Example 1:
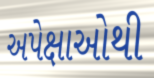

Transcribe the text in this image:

અપેક્ષાઓથી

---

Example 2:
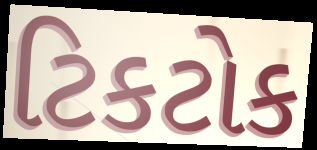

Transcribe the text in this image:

ટિકટોક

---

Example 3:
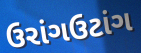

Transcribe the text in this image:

ઉરાંગઉટાંગ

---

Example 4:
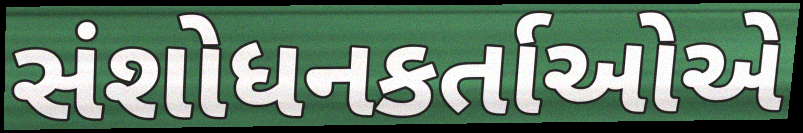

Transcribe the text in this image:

સંશોધનકર્તાઓએ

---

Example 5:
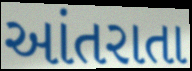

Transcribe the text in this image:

આંતરાતા